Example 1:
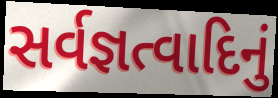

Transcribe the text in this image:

સર્વજ્ઞત્વાદિનું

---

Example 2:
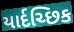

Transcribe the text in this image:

યાર્દચ્છિક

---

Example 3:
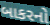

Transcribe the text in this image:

બાકરનો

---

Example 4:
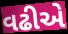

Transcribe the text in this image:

વઢીએ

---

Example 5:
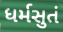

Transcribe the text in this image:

ધર્મસુતં